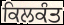
ਕਿਲਕੰਤ